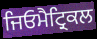
ਜਿਓਮੈਟ੍ਰਿਕਲ